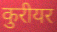
कुरीयर